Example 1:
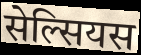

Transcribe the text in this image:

सेल्सियस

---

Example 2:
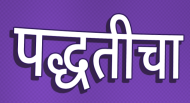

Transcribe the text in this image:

पद्धतीचा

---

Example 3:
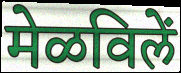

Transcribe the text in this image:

मेळविलें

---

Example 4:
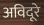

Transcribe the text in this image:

अविदूरे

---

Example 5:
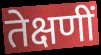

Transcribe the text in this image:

तेक्षणीं